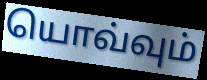
யொவ்வும்